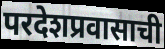
परदेशप्रवासाची